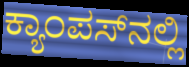
ಕ್ಯಾಂಪಸ್‌ನಲ್ಲಿ